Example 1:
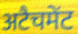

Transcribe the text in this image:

अटैचमेंट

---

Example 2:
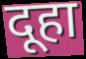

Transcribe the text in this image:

दूहा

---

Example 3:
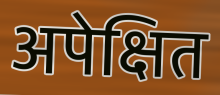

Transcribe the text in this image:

अपेक्षित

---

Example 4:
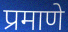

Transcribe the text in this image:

प्रमाणे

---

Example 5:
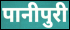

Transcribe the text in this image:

पानीपुरी